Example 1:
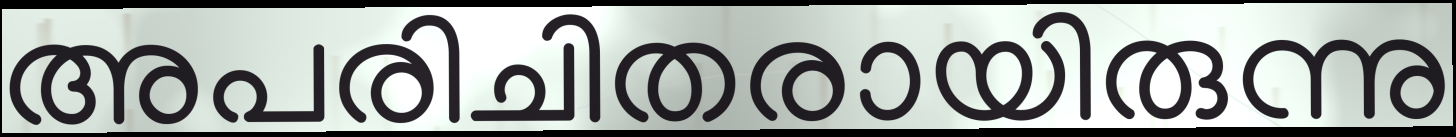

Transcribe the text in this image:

അപരിചിതരായിരുന്നു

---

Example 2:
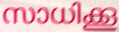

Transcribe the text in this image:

സാധിക്കൂ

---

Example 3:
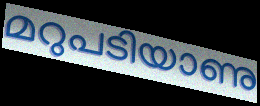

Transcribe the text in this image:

മറുപടിയാണു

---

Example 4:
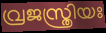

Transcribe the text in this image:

വ്രജസ്ത്രിയഃ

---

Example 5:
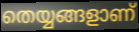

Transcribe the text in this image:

തെയ്യങ്ങളാണ്